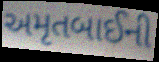
અમૃતબાઈની